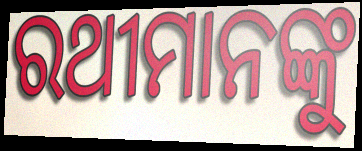
ରଥୀମାନଙ୍କୁ